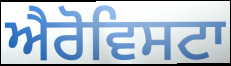
ਐਰੋਵਿਸਟਾ